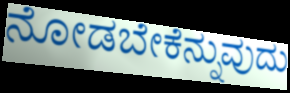
ನೋಡಬೇಕೆನ್ನುವುದು